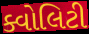
ક્વોલિટી